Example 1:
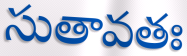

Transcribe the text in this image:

సుతావతః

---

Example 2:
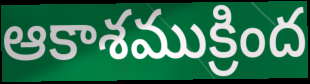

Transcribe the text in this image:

ఆకాశముక్రింద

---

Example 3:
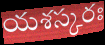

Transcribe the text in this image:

యశస్కరః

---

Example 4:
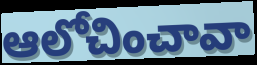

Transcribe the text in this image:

ఆలోచించావా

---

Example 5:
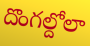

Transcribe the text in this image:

దొంగల్దోలా